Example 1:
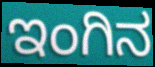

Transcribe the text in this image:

ಇಂಗಿನ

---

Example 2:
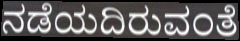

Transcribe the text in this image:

ನಡೆಯದಿರುವಂತೆ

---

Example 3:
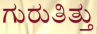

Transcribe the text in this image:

ಗುರುತಿತ್ತು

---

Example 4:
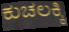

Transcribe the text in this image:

ಕುಚಲಕ್ಕಿ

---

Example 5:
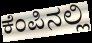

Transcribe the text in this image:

ಕೆಂಪಿನಲ್ಲಿ